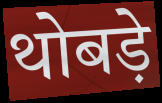
थोबड़े